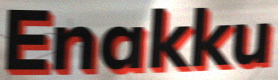
Enakku